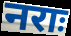
नराः